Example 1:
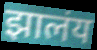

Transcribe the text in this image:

झालंय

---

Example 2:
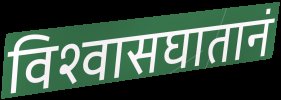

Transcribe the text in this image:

विश्वासघातानं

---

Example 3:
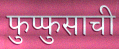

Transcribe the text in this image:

फुप्फुसाची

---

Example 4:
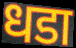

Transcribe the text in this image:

धडा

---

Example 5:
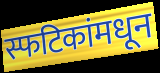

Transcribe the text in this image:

स्फटिकांमधून